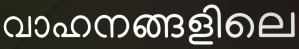
വാഹനങ്ങളിലെ